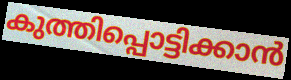
കുത്തിപ്പൊട്ടിക്കാൻ